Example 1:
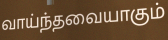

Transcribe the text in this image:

வாய்ந்தவையாகும்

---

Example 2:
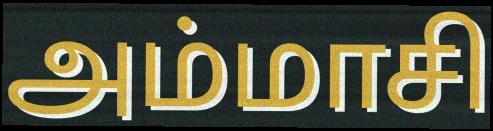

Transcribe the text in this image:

அம்மாசி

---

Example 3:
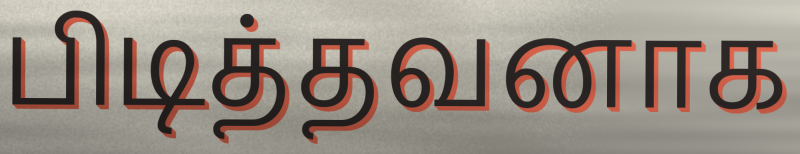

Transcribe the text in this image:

பிடித்தவனாக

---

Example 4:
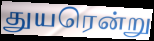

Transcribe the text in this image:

துயரென்று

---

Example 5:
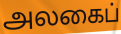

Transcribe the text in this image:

அலகைப்